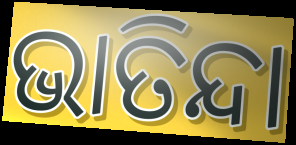
ଭାତିନ୍ଦା